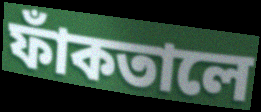
ফাঁকতালে